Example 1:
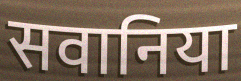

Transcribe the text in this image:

सवानिया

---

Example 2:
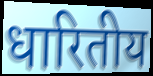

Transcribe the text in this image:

धारितीय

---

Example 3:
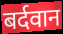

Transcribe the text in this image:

बर्दवान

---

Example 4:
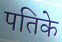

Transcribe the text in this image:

पतिके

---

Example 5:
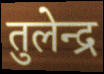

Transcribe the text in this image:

तुलेन्द्र